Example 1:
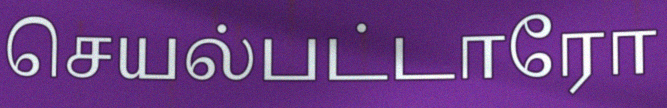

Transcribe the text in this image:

செயல்பட்டாரோ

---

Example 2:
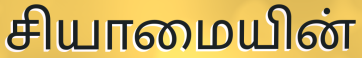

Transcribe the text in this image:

சியாமையின்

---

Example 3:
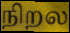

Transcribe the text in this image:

நிறல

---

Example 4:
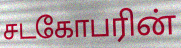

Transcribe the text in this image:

சடகோபரின்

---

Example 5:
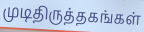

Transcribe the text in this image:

முடிதிருத்தகங்கள்